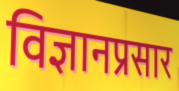
विज्ञानप्रसार